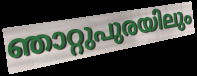
ഞാറ്റുപുരയിലും